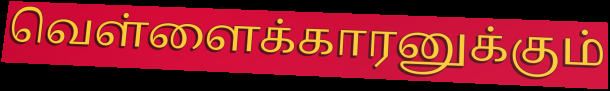
வெள்ளைக்காரனுக்கும்